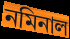
নমিনাল